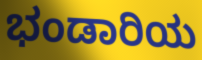
ಭಂಡಾರಿಯ